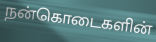
நன்கொடைகளின்